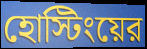
হোস্টিংয়ের